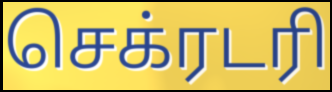
செக்ரடரி